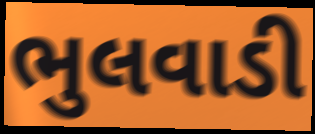
ભુલવાડી